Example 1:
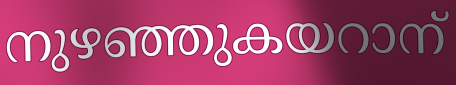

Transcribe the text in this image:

നുഴഞ്ഞുകയറാന്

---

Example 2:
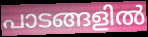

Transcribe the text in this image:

പാടങ്ങളിൽ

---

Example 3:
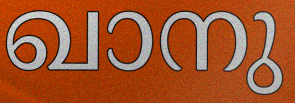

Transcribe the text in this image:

ഖാനു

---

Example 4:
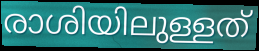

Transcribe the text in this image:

രാശിയിലുള്ളത്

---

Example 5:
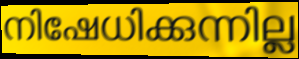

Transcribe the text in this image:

നിഷേധിക്കുന്നില്ല